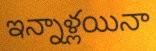
ఇన్నాళ్లయినా